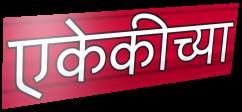
एकेकीच्या